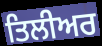
ਤਿਲੀਅਰ